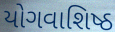
યોગવાશિષ્ઠ